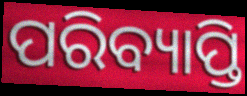
ପରିବ୍ୟାପ୍ତି